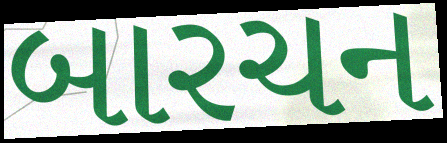
બારચન